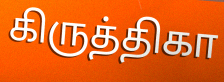
கிருத்திகா